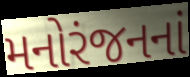
મનોરંજનનાં